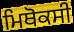
ਮਿਥੋਕਸੀ